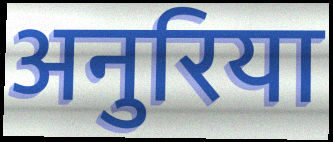
अनुरिया